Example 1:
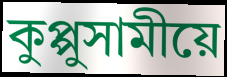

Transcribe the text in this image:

কুপ্পুসামীয়ে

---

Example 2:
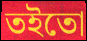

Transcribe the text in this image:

তইতো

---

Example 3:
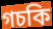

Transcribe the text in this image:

গচকি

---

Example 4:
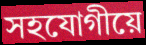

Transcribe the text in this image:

সহযোগীয়ে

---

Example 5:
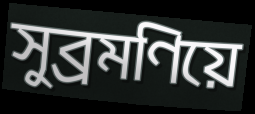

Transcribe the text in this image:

সুব্ৰমণিয়ে